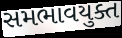
સમભાવયુક્ત